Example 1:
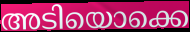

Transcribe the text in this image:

അടിയൊക്കെ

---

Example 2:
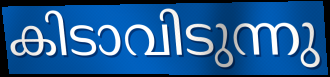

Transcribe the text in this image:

കിടാവിടുന്നു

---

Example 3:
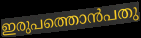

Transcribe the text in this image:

ഇരുപത്തൊൻപതു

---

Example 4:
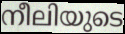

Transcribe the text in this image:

നീലിയുടെ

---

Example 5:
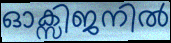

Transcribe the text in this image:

ഓക്സിജനിൽ